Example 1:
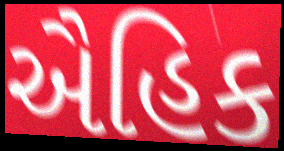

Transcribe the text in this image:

ઐહિક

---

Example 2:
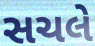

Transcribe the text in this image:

સચલે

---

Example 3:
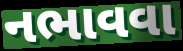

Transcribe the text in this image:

નભાવવા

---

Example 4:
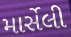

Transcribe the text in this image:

માર્સેલી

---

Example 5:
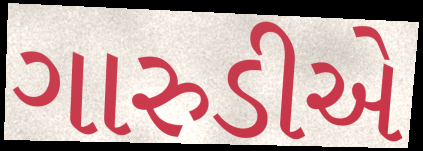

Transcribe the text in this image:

ગારુડીએ